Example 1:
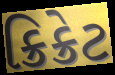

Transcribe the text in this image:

ક્રિક્રેટ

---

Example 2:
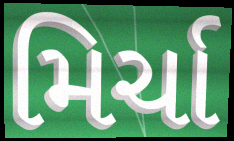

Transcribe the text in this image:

મિર્ચા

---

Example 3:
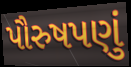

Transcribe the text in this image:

પૌરુષપણું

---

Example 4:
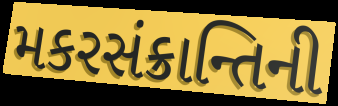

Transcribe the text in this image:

મકરસંક્રાન્તિની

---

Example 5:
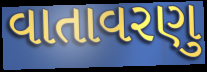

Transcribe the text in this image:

વાતાવરણુ